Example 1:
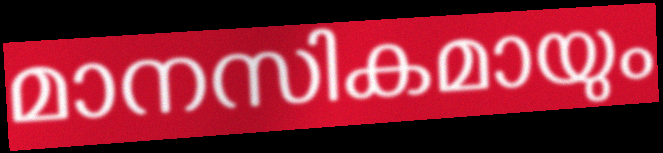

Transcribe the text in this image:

മാനസികമായും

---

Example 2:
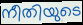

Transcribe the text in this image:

നീതിയുടെ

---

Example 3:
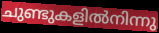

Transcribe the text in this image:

ചുണ്ടുകളിൽനിന്നു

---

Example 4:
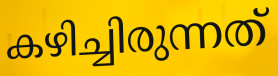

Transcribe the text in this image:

കഴിച്ചിരുന്നത്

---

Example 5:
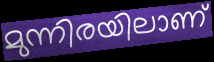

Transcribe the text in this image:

മുന്നിരയിലാണ്